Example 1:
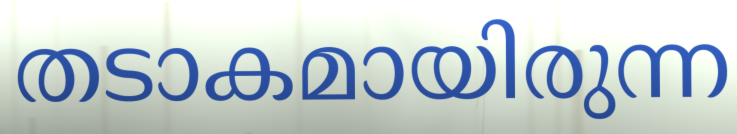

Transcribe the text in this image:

തടാകമായിരുന്ന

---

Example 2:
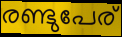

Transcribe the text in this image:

രണ്ടുപേര്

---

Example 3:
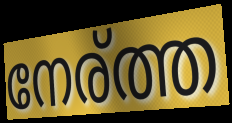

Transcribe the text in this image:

നേര്ത്ത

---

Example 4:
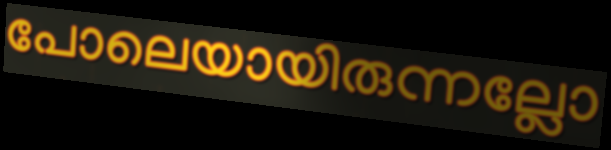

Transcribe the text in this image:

പോലെയായിരുന്നല്ലോ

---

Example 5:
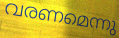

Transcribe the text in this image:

വരണമെന്നു